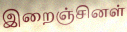
இறைஞ்சினள்